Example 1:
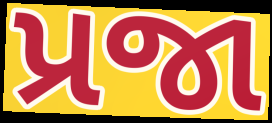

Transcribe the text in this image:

પ્રજા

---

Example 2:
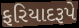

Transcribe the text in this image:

ફરિયાદરૂપે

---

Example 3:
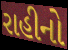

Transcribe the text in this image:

રાહીનો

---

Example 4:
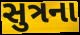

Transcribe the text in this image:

સુત્રના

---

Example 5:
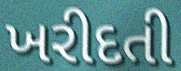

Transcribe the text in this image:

ખરીદતી